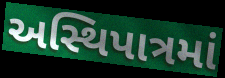
અસ્થિપાત્રમાં